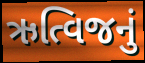
ઋત્વિજનું